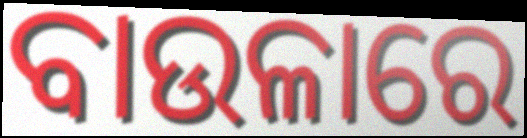
ବାଉଳାରେ